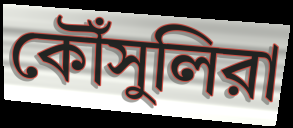
কৌঁসুলিরা